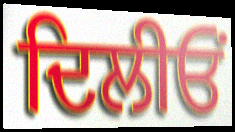
ਦਿਲੀਓਂ